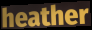
heather